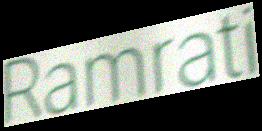
Ramrati